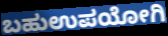
ಬಹುಉಪಯೋಗಿ